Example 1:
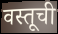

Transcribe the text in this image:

वस्तूची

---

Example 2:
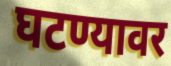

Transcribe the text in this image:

घटण्यावर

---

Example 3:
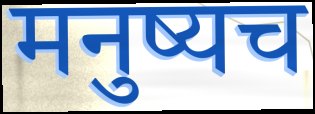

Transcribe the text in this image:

मनुष्यच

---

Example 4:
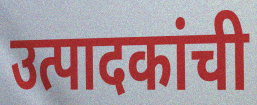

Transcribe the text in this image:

उत्पादकांची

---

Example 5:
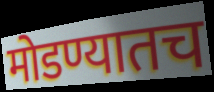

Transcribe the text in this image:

मोडण्यातच